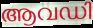
ആവഡി